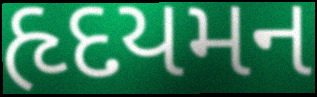
હૃદયમન